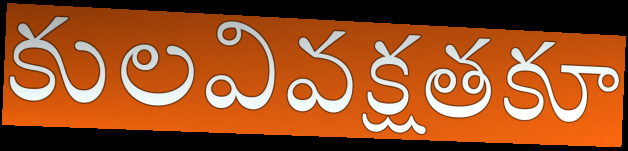
కులవివక్షతకూ